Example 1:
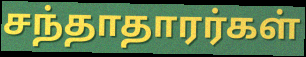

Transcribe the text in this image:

சந்தாதாரர்கள்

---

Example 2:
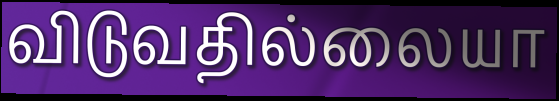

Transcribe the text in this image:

விடுவதில்லையா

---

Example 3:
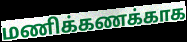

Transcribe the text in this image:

மணிக்கணக்காக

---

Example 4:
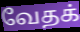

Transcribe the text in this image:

வேதக்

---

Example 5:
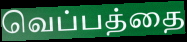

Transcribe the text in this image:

வெப்பத்தை